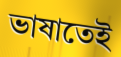
ভাষাতেই